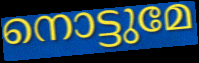
നൊട്ടുമേ